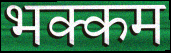
भक्‍कम